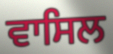
ਵਾਸਿਲ